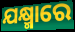
ଯକ୍ଷ୍ମାରେ